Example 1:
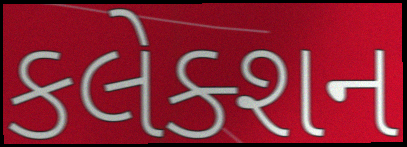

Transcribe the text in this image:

કલેક્શન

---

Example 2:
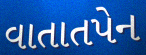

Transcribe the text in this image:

વાતાતપેન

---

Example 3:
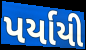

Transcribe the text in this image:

પર્યાયી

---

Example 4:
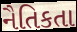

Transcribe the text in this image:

નૈતિકતા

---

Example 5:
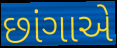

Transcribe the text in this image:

છાંગાએ